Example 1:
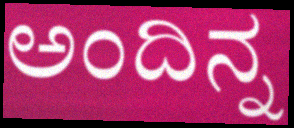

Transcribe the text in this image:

ಅಂದಿನ್ನ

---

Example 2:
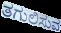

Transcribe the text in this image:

ತಗುಲಿಸುವ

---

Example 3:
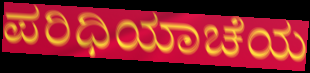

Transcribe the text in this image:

ಪರಿಧಿಯಾಚೆಯ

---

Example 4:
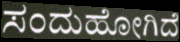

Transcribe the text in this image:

ಸಂದುಹೋಗಿದೆ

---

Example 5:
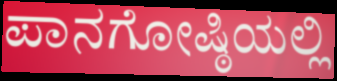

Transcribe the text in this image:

ಪಾನಗೋಷ್ಠಿಯಲ್ಲಿ